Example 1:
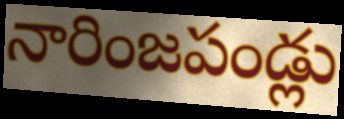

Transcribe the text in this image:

నారింజపండ్లు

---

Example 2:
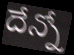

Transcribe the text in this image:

దేన్నో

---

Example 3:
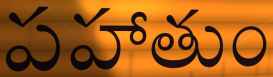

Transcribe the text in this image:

పహాతుం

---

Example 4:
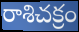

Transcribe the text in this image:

రాశిచక్రం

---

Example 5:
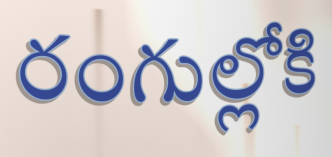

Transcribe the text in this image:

రంగుల్లోకి